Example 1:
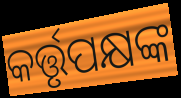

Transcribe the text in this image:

କର୍ତ୍ତୃପକ୍ଷଙ୍କ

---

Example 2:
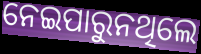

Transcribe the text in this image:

ନେଇପାରୁନଥିଲେ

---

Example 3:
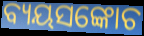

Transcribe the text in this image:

ବ୍ୟୟସଙ୍କୋଚ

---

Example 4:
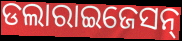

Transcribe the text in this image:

ଡଲାରାଇଜେସନ୍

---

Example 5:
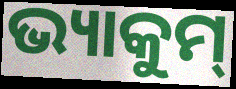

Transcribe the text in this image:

ଭ୍ୟାକୁମ୍